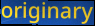
originary